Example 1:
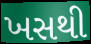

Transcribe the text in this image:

ખસથી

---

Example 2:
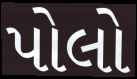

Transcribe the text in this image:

પોલો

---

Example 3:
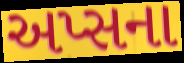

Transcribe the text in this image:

અપ્સના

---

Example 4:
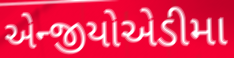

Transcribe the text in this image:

એન્જીયોએડીમા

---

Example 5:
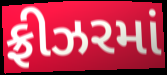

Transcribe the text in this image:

ફ્રીઝરમાં